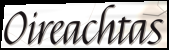
Oireachtas